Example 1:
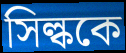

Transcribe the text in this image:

সিল্ককে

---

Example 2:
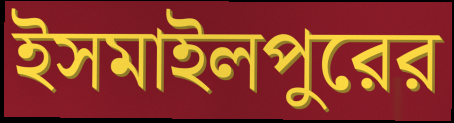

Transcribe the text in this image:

ইসমাইলপুরের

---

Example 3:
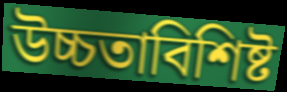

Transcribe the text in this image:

উচ্চতাবিশিষ্ট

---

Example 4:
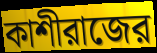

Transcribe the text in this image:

কাশীরাজের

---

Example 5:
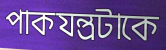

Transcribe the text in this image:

পাকযন্ত্রটাকে